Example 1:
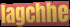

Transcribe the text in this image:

lagchhe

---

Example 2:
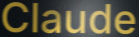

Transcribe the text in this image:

Claude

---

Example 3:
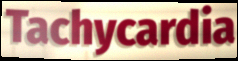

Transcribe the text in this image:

Tachycardia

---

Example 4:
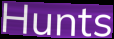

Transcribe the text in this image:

Hunts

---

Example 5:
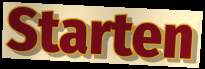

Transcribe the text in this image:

Starten